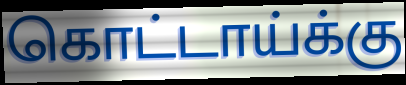
கொட்டாய்க்கு